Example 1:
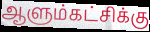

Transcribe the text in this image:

ஆளும்கட்சிக்கு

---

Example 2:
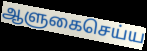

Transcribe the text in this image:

ஆளுகைசெய்ய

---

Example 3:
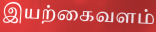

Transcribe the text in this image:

இயற்கைவளம்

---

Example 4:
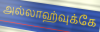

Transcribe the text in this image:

அல்லாஹ்வுக்கே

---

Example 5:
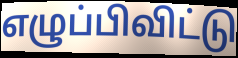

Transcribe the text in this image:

எழுப்பிவிட்டு